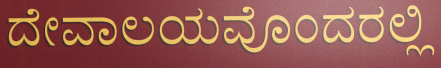
ದೇವಾಲಯವೊಂದರಲ್ಲಿ